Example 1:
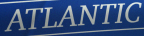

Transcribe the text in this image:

ATLANTIC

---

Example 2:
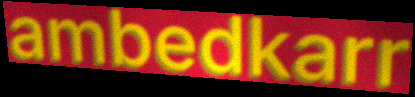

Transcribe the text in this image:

ambedkarr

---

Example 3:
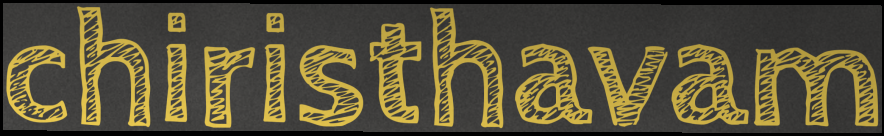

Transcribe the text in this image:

chiristhavam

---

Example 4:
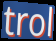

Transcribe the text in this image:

trol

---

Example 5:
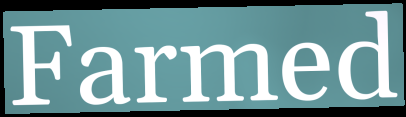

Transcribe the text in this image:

Farmed